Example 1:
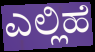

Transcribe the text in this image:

ಎಲ್ಲಿಹೆ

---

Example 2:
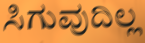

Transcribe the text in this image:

ಸಿಗುವುದಿಲ್ಲ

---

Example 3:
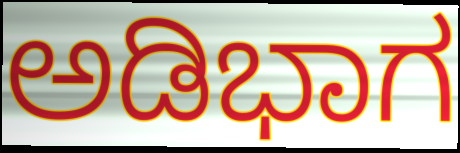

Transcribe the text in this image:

ಅಡಿಭಾಗ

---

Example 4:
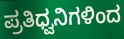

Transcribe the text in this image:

ಪ್ರತಿಧ್ವನಿಗಳಿಂದ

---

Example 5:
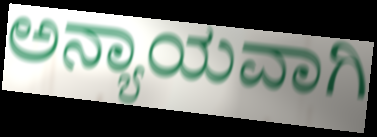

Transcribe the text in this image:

ಅನ್ಯಾಯವಾಗಿ